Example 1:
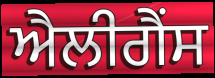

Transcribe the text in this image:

ਐਲੀਗੈਂਸ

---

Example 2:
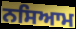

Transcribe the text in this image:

ਨਸਿਆਮ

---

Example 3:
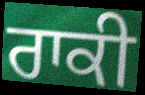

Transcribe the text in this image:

ਰਾਕੀ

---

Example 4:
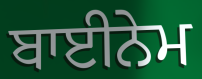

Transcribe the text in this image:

ਬਾਈਨੇਮ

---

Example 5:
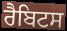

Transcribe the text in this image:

ਰੈਬਿਟਸ